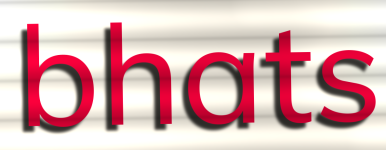
bhats